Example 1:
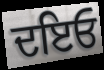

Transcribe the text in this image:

ਦਇਓ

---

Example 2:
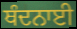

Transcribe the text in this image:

ਥੰਦਨਾਈ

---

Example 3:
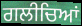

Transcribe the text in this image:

ਗਲੀਚਿਆਂ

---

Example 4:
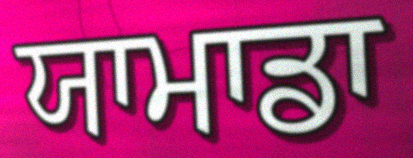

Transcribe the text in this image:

ਯਾਮਾਡਾ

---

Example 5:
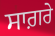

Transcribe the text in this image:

ਸਾਗ਼ਰੇ